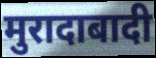
मुरादाबादी